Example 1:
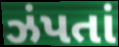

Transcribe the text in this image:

ઝંપતાં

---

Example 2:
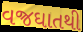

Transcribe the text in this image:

વજ્રઘાતથી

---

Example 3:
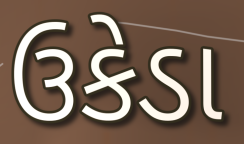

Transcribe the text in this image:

ઉકેડા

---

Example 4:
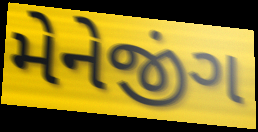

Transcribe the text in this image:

મેનેજીંગ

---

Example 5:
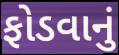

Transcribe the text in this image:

ફોડવાનું